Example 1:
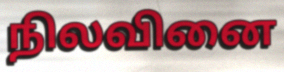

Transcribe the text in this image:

நிலவினை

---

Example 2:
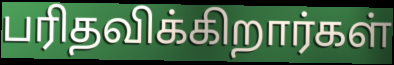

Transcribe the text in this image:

பரிதவிக்கிறார்கள்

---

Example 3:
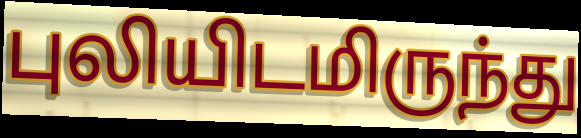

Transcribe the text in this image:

புலியிடமிருந்து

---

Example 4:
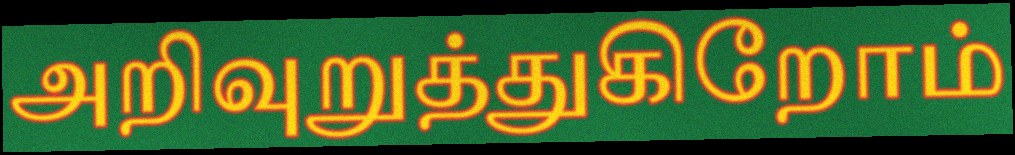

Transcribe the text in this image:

அறிவுறுத்துகிறோம்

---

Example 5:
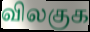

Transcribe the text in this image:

விலகுக